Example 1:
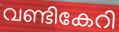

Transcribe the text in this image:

വണ്ടികേറി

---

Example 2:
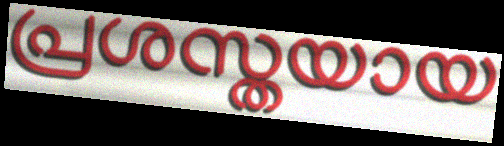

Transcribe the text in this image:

പ്രശസ്തയായ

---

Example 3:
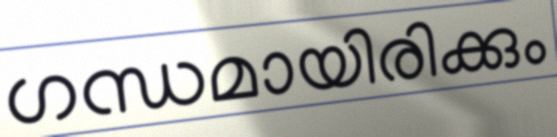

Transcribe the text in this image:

ഗന്ധമായിരിക്കും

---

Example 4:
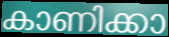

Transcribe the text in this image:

കാണിക്കാ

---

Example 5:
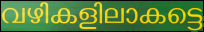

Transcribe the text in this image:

വഴികളിലാകട്ടെ